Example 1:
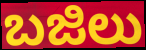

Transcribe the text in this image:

ಬಜಿಲು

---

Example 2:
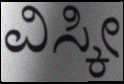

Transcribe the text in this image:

ವಿಸ್ಕೀ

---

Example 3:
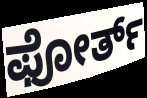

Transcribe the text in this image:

ಫೋರ್ತ್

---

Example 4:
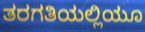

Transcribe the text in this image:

ತರಗತಿಯಲ್ಲಿಯೂ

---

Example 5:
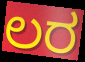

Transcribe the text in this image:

ಲರ